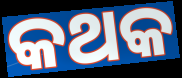
କଥକ